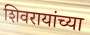
शिवरायांच्या